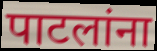
पाटलांना